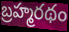
బ్రహ్మరథం